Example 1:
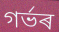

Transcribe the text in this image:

গৰ্ভৰ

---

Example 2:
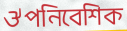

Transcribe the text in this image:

ঔপনিবেশিক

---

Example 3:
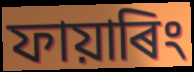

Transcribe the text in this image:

ফায়াৰিং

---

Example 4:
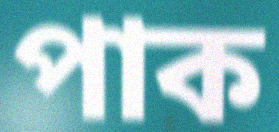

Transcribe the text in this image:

পাক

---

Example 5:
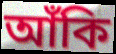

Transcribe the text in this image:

আঁকি